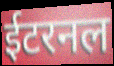
ईटरनल